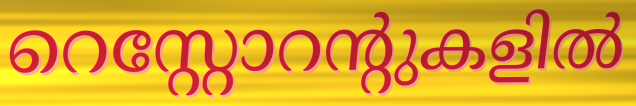
റെസ്റ്റോറന്റുകളിൽ